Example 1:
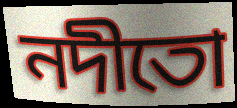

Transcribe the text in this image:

নদীতো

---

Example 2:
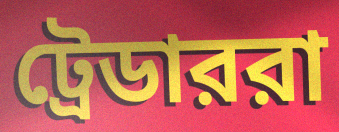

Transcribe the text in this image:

ট্রেডাররা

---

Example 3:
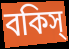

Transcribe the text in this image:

বকিস্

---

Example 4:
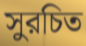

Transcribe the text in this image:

সুরচিত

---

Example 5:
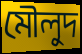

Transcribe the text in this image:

মৌলুদ